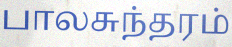
பாலசுந்தரம்